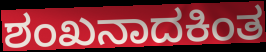
ಶಂಖನಾದಕಿಂತ